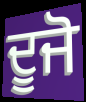
ਦੂਜੋ